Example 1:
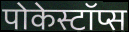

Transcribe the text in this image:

पोकेस्टॉप्स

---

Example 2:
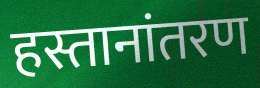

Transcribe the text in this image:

हस्तानांतरण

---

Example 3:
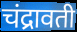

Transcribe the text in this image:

चंद्रावती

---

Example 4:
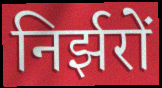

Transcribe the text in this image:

निर्झरों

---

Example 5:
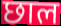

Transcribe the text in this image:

छाल